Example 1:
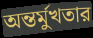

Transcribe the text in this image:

অন্তর্মুখতার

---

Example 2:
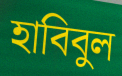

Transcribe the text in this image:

হাবিবুল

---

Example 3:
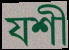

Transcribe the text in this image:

যশী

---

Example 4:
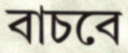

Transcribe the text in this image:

বাচবে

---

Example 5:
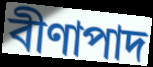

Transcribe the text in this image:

বীণাপাদ